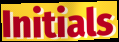
Initials